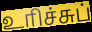
உரிச்சுப்